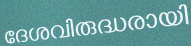
ദേശവിരുദ്ധരായി